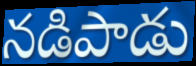
నడిపాడు